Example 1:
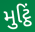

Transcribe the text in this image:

મુટ્ઠિં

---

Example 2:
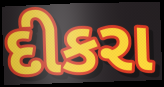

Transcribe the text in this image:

દીકરા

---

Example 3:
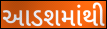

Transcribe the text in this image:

આડશમાંથી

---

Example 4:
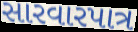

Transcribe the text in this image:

સારવારપાત્ર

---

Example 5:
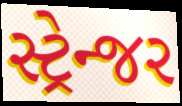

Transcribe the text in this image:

સ્ટ્રેન્જર